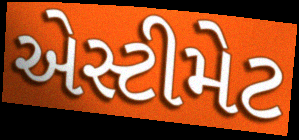
એસ્ટીમેટ